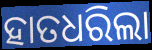
ହାତଧରିଲା